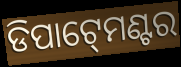
ଡିପାଟ୍‍ମେଣ୍ଟର